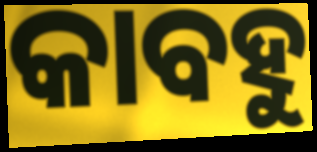
କାବହୁ